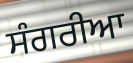
ਸੰਗਰੀਆ